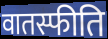
वातस्फीति